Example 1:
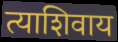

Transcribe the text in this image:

त्याशिवाय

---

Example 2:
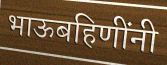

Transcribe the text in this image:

भाऊबहिणींनी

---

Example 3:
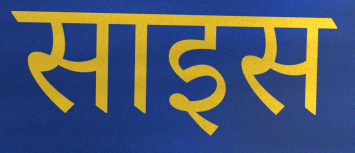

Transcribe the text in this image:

साइस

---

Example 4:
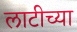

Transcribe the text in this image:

लाटीच्या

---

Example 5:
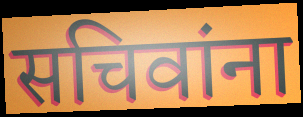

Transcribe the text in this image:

सचिवांना